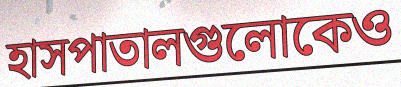
হাসপাতালগুলোকেও